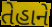
તેહાને